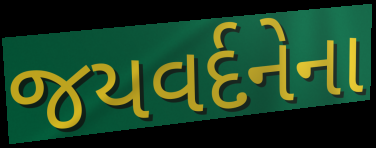
જયવર્દનેના